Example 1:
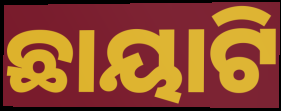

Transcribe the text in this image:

ଛାୟାଟି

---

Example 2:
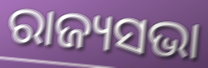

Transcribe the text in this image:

ରାଜ୍ୟସଭା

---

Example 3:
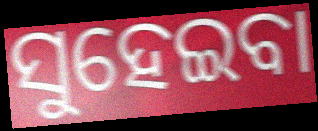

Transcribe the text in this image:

ସୁହେଇବା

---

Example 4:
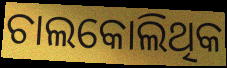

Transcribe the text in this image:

ଚାଲକୋଲିଥିକ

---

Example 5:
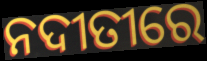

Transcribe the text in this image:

ନଦୀତୀରେ